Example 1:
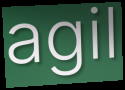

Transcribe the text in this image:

agil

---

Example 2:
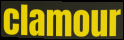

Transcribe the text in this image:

clamour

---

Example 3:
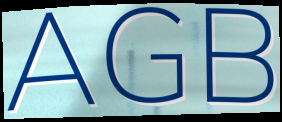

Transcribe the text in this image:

AGB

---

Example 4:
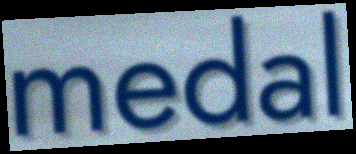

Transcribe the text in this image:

medal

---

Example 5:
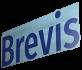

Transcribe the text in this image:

Brevis